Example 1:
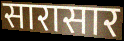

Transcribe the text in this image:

सारासार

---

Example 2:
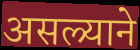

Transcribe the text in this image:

असल्याने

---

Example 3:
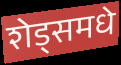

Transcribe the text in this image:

शेड्समधे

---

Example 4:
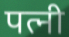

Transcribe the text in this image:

पत्‍नी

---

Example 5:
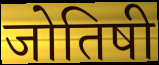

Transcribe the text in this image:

जोतिषी